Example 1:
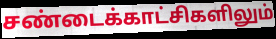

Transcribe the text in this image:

சண்டைக்காட்சிகளிலும்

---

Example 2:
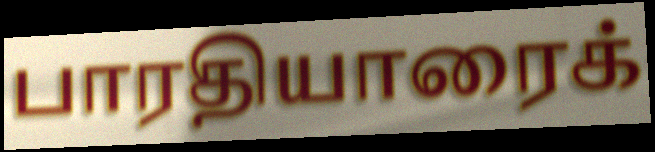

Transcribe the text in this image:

பாரதியாரைக்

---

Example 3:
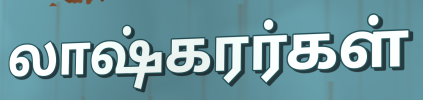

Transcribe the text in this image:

லாஷ்கரர்கள்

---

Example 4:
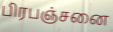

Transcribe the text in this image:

பிரபஞ்சனை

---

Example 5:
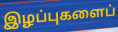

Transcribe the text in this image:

இழப்புகளைப்